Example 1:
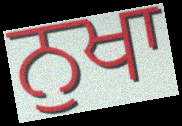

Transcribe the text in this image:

ਨੁਖਾ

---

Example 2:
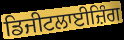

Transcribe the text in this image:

ਡਿਜੀਟਲਾਈਜ਼ਿੰਗ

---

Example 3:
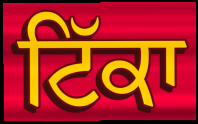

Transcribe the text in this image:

ਟਿੱਕਾ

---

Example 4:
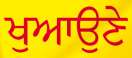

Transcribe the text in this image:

ਖੁਆਉਣੇ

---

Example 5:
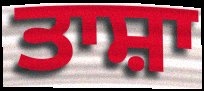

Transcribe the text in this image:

ਤਾਸ਼ਾ